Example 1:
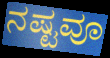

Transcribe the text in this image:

ನಷ್ಟವೂ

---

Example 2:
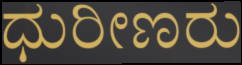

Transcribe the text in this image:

ಧುರೀಣರು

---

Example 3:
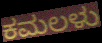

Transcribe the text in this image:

ಕಮಲಳು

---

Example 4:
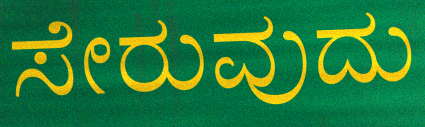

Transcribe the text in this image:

ಸೇರುವುದು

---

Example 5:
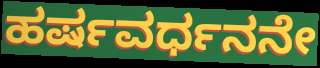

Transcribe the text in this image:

ಹರ್ಷವರ್ಧನನೇ